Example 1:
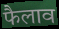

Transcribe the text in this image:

फैलाव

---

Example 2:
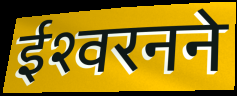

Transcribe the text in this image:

ईश्वरनने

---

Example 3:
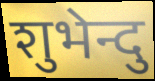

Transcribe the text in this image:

शुभेन्दु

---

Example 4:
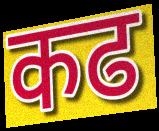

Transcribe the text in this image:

कढ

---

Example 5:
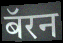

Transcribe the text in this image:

बॅरन